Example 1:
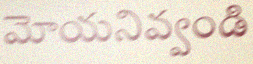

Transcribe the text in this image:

మోయనివ్వండి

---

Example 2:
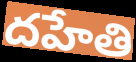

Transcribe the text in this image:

దహేతి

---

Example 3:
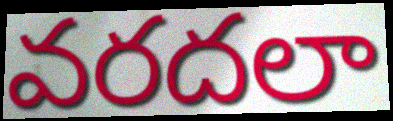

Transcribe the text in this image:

వరదలా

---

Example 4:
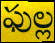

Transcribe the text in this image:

ఫుల్ల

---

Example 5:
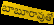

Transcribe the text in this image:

బాబూరావుతో